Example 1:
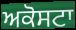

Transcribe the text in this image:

ਅਕੋਸਟਾ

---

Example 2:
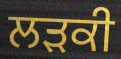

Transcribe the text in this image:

ਲੜਕੀ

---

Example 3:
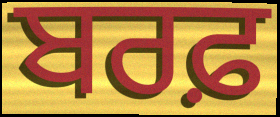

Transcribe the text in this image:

ਬਰਫ਼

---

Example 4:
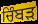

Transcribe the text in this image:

ਚਿੰਬੜ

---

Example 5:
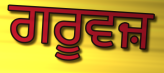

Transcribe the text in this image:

ਗਰੂਵਜ਼